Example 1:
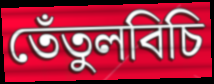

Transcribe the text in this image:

তেঁতুলবিচি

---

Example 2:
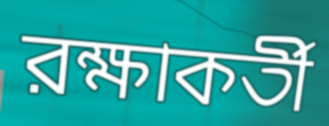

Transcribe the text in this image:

রক্ষাকর্তী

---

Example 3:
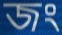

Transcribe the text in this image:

জং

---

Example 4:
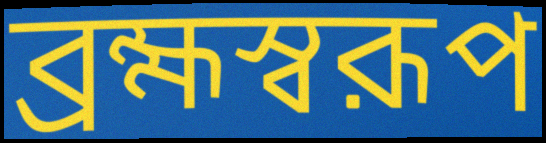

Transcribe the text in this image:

ব্রহ্মস্বরূপ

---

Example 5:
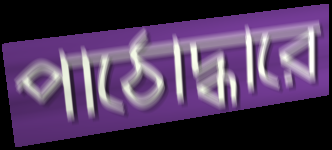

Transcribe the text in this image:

পাঠোদ্ধারে